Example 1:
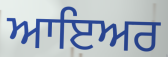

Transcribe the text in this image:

ਆਇਅਰ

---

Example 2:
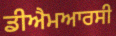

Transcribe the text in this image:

ਡੀਐਮਆਰਸੀ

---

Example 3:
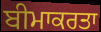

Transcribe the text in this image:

ਬੀਮਾਕਰਤਾ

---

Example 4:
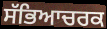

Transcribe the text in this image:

ਸੱਭਿਆਚਰਕ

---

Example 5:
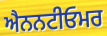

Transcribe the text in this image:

ਐਨਨਟੀਓਮਰ